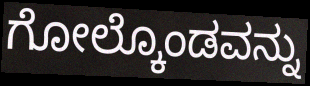
ಗೋಲ್ಕೊಂಡವನ್ನು